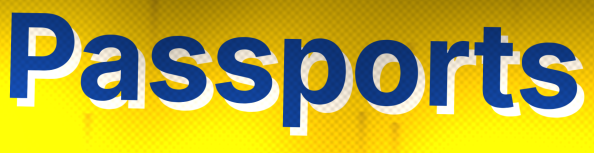
Passports